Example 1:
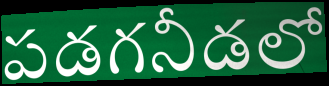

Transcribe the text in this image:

పడగనీడలో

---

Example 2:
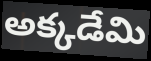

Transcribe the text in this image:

అక్కడేమి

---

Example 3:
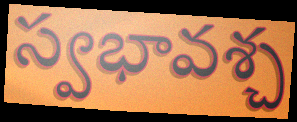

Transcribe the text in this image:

స్వభావశ్చ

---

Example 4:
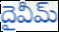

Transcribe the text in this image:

దైవీమ్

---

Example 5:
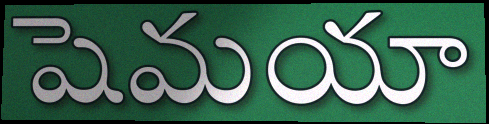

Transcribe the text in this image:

షెమయా